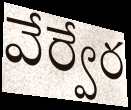
వేర్వేర